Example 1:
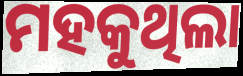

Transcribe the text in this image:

ମହକୁଥିଲା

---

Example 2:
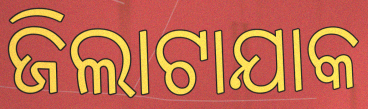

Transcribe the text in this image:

ଜିଲାଟାଯାକ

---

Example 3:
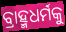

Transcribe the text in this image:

ବ୍ରାହ୍ମଧର୍ମକୁ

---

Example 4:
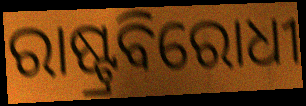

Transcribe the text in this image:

ରାଷ୍ଟ୍ରବିରୋଧୀ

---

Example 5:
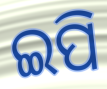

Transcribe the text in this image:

ଇପି